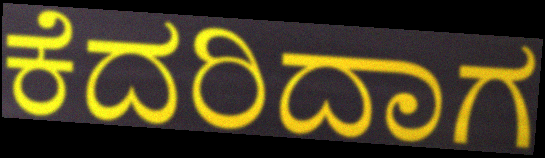
ಕೆದರಿದಾಗ